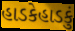
હાડકેહાડકું